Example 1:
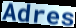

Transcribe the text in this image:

Adres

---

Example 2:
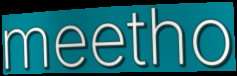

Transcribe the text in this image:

meetho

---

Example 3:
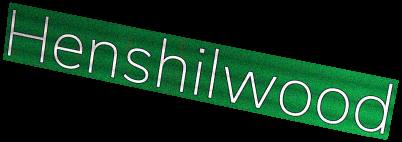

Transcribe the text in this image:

Henshilwood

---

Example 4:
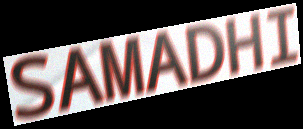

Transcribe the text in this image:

SAMADHI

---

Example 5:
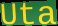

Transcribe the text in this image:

Uta